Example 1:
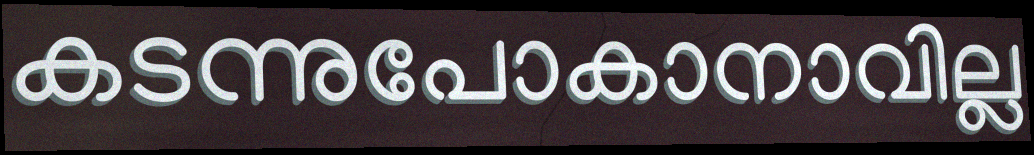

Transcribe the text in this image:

കടന്നുപോകാനാവില്ല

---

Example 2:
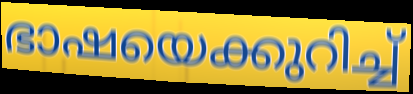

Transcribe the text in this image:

ഭാഷയെക്കുറിച്ച്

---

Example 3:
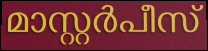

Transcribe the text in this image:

മാസ്റ്റർപീസ്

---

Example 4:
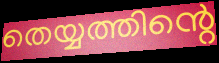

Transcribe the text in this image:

തെയ്യത്തിന്റെ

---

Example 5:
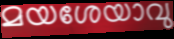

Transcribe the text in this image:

മയശേയാവു